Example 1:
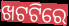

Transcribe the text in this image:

ଖଟଟିରେ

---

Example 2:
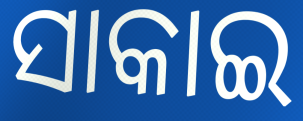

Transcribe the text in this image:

ସାକାଇ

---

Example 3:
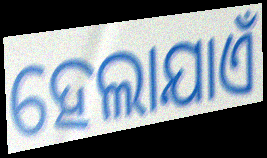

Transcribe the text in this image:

ହେଲାଯାଏଁ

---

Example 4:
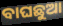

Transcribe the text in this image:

ବାଘଛୁଆ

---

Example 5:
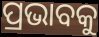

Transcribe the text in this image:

ପ୍ରଭାବକୁ